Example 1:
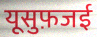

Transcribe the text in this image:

यूसुफ़जई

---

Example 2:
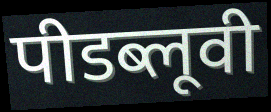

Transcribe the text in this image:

पीडब्लूवी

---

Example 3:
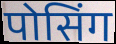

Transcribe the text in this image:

पोसिंग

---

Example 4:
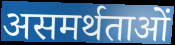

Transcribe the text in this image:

असमर्थताओं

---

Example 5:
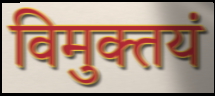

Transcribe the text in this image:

विमुक्तयं